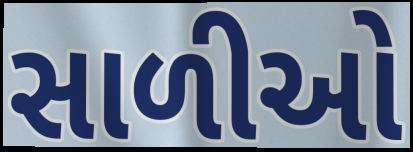
સાળીઓ